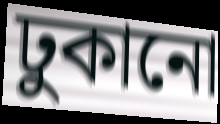
ঢুকানো